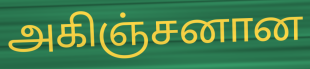
அகிஞ்சனான